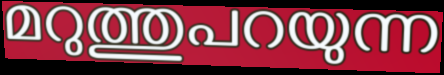
മറുത്തുപറയുന്ന